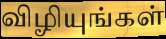
விழியுங்கள்